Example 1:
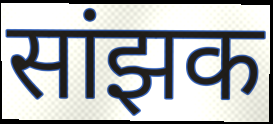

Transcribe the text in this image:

सांझक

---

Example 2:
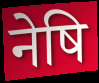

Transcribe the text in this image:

नेषि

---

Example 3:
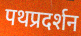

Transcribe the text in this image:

पथप्रदर्शन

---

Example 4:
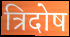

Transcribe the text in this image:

त्रिदोष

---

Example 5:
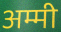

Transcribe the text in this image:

अम्मी